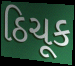
ઠિચૂક